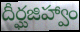
దీర్ఘజిహ్వాం